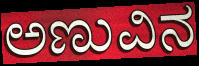
ಅಣುವಿನ